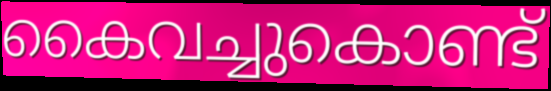
കൈവച്ചുകൊണ്ട്